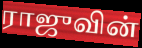
ராஜுவின்